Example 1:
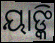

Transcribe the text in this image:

ୟାଙ୍କି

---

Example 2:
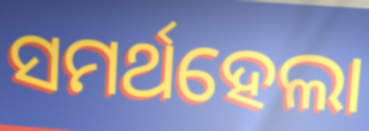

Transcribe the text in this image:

ସମର୍ଥହେଲା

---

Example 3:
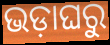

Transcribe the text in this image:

ଭଡ଼ାଘରୁ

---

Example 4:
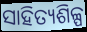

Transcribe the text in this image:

ସାହିତ୍ୟଶିଳ୍ପ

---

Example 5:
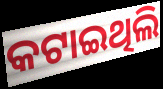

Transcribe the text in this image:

କଟାଇଥିଲି